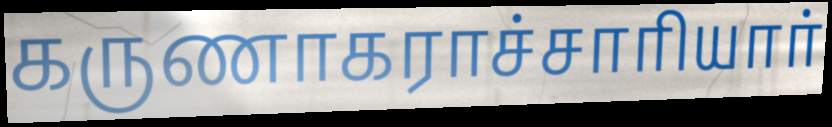
கருணாகராச்சாரியார்